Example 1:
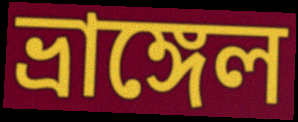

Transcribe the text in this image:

ভ্রাঙ্গেল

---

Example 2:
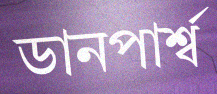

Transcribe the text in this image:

ডানপার্শ্ব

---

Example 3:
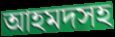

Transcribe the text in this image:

আহমদসহ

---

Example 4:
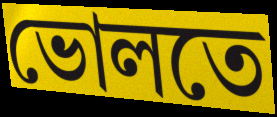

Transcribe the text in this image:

ভোলতে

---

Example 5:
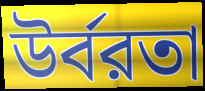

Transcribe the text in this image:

উর্বরতা